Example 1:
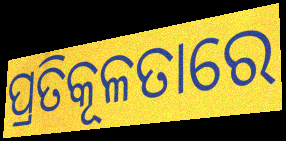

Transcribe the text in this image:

ପ୍ରତିକୂଳତାରେ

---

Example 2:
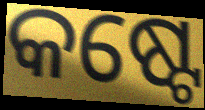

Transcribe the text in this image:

କଷ୍ଟେ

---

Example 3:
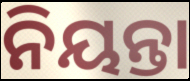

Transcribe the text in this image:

ନିୟନ୍ତା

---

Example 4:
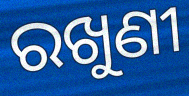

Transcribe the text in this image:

ରଖୁଣୀ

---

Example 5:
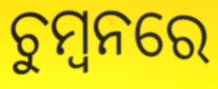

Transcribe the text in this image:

ଚୁମ୍ୱନରେ